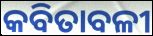
କବିତାବଳୀ